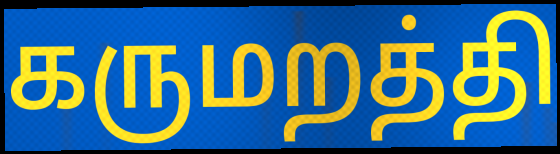
கருமறத்தி